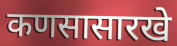
कणसासारखे